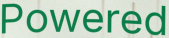
Powered